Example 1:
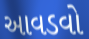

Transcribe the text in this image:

આવડવો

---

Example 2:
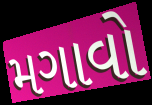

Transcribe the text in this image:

મગાવો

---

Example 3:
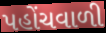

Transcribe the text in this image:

પહોંચવાળી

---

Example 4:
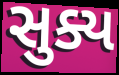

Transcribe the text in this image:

સુક્ય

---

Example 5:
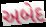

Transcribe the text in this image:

અબેદ